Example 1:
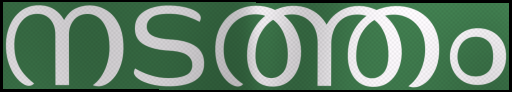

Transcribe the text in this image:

നടത്തം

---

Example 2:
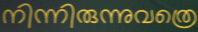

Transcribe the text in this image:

നിന്നിരുന്നുവത്രെ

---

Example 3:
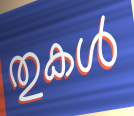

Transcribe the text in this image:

തുകൾ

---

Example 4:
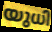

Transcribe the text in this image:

യുധി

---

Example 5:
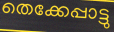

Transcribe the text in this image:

തെക്കേപ്പാട്ടു